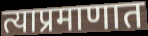
त्याप्रमाणात